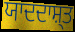
ਯਾਦਦਾਸ਼੍ਤ